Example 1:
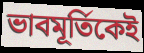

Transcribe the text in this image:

ভাবমূর্তিকেই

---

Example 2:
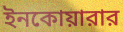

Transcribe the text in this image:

ইনকোয়ারার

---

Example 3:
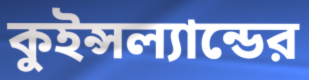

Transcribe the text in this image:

কুইন্সল্যান্ডের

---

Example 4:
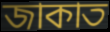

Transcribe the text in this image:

জাকাত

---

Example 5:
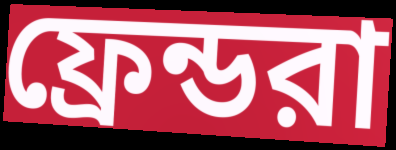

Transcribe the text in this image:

ফ্রেন্ডরা